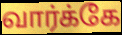
வார்க்கே